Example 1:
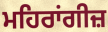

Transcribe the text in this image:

ਮਹਿਰਾਂਗੀਜ਼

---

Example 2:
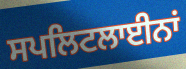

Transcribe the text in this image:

ਸਪਲਿਟਲਾਈਨਾਂ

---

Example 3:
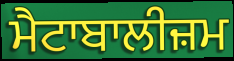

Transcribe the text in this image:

ਮੈਟਾਬਾਲੀਜ਼ਮ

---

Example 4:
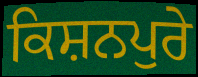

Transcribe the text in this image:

ਕਿਸ਼ਨਪੁਰੇ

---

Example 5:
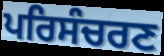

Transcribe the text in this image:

ਪਰਿਸੰਚਰਣ